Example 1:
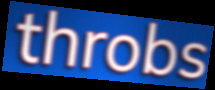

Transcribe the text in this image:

throbs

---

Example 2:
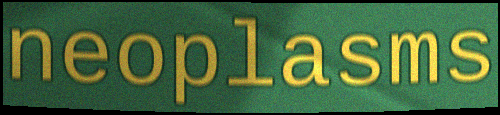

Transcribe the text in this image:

neoplasms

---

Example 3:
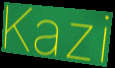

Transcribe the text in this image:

Kazi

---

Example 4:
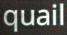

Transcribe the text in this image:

quail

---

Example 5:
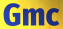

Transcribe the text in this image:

Gmc